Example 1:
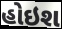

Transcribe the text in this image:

હોઇશ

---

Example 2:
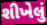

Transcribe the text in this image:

શીખેલું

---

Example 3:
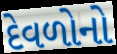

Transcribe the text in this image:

દેવળોનો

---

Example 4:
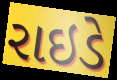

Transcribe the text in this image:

રાઇડે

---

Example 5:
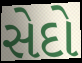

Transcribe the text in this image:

સેદો